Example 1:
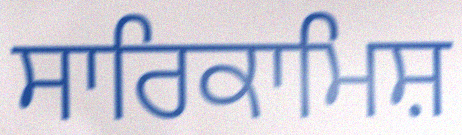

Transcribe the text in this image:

ਸਾਰਿਕਾਮਿਸ਼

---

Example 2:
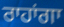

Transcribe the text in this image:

ਰਾਹਾਂਗਾ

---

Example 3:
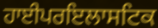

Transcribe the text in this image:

ਹਾਈਪਰਇਲਾਸਟਿਕ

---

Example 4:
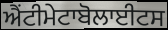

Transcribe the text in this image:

ਐਂਟੀਮੇਟਾਬੋਲਾਈਟਸ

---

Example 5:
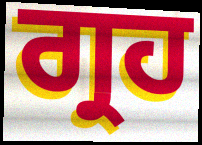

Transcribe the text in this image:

ਗ੍ਰਹ